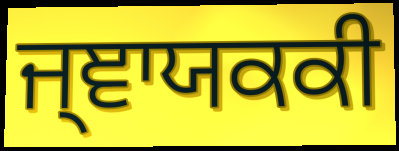
ਜ੍ਞਾਯਕਕੀ